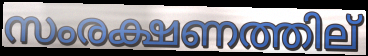
സംരക്ഷണത്തില്